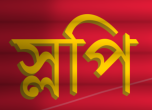
স্লপি